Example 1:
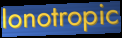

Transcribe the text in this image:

Ionotropic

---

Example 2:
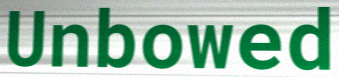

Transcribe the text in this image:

Unbowed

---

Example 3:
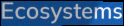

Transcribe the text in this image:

Ecosystems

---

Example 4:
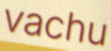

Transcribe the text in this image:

vachu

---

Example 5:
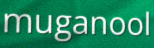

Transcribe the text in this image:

muganool